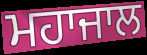
ਮਹਾਜਾਲ